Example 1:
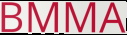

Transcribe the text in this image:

BMMA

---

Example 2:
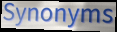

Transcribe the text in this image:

Synonyms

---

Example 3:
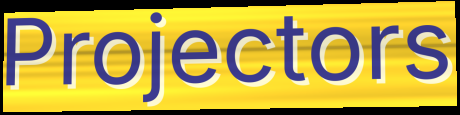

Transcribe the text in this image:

Projectors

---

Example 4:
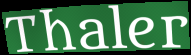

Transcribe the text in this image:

Thaler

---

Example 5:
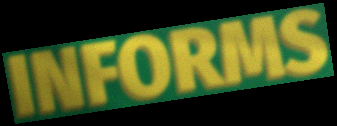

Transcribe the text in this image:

INFORMS